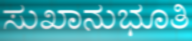
ಸುಖಾನುಭೂತಿ